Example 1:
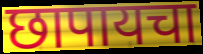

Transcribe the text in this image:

छापायचा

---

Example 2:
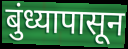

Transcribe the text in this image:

बुंध्यापासून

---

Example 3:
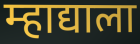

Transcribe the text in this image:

म्हाद्याला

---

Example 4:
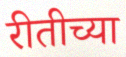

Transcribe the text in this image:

रीतीच्या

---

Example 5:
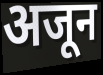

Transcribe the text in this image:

अजून